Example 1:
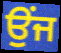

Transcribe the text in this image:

ਉੰਜ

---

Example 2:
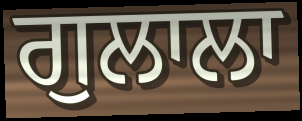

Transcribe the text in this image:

ਗੁਲਾਲਾ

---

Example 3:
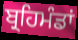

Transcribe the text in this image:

ਬ੍ਰਹਿਮੰਡਾਂ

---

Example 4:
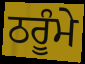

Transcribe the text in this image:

ਠਰੂੰਮੇ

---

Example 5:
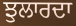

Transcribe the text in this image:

ਝੁਲਾਰਦਾ